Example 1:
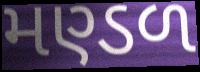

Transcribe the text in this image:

મણ્ડળ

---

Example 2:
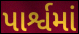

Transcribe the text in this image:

પાર્શ્વમાં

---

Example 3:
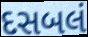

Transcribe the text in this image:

દસબલં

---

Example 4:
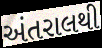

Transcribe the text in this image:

અંતરાલથી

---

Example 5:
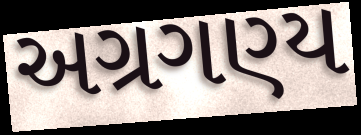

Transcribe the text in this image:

અગ્રગણ્ય